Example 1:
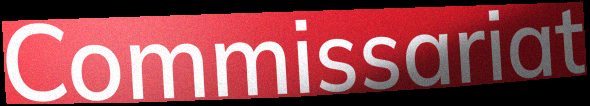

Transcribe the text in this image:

Commissariat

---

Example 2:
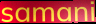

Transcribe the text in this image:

samani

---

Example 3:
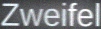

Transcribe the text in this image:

Zweifel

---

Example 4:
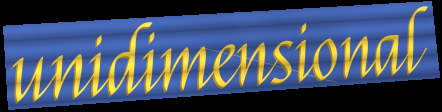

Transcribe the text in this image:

unidimensional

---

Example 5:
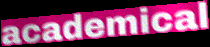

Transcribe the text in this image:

academical